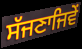
ਸੱਜਣਾਜਿਵੇਂ